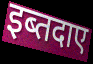
इब्तदाए